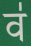
व॑